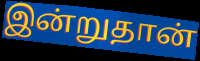
இன்றுதான்